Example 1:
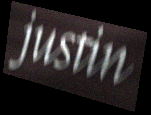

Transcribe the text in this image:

justin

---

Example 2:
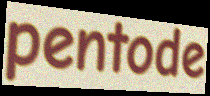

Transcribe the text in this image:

pentode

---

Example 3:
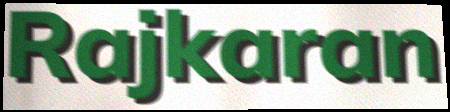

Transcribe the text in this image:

Rajkaran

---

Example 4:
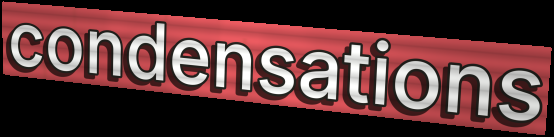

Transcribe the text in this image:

condensations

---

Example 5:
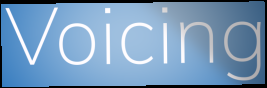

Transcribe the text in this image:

Voicing